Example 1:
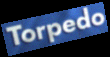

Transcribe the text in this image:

Torpedo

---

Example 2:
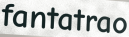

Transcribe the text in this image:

fantatrao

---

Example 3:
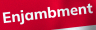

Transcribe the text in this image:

Enjambment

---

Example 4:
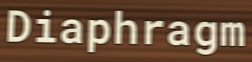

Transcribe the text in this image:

Diaphragm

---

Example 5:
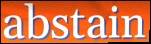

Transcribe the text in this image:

abstain